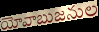
యోవాబుజనుల